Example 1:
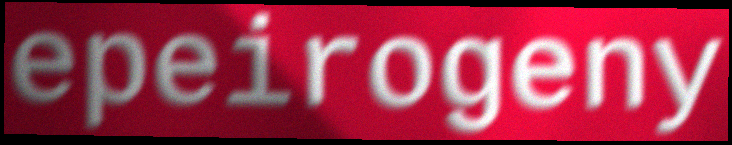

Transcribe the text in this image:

epeirogeny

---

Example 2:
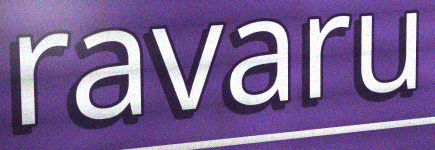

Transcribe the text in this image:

ravaru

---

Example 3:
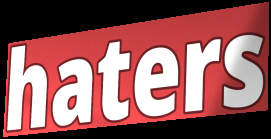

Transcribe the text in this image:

haters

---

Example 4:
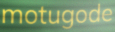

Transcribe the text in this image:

motugode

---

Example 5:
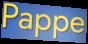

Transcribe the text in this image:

Pappe